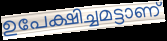
ഉപേക്ഷിച്ചമട്ടാണ്